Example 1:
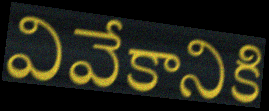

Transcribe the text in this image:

వివేకానికి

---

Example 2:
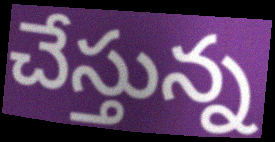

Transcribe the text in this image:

చేస్తున్న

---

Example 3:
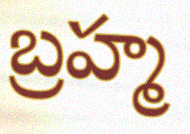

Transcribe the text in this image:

బ్రహ్మ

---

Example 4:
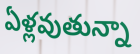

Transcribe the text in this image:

ఏళ్లవుతున్నా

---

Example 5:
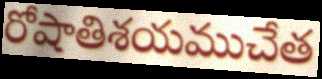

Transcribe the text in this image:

రోషాతిశయముచేత